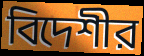
বিদেশীর